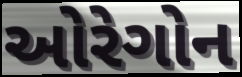
ઓરેગોન